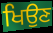
ਖਿਉਣ